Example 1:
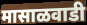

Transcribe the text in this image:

मासाळवाडी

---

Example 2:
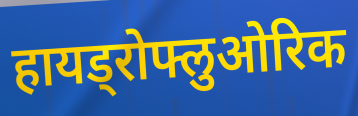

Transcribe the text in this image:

हायड्रोफ्लुओरिक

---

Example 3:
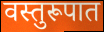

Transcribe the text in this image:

वस्तुरूपात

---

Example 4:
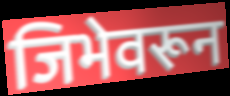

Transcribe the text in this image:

जिभेवरून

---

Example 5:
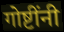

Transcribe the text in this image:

गोष्टींनी